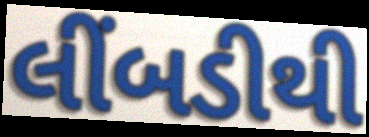
લીંબડીથી